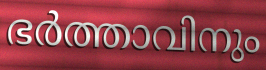
ഭർത്താവിനും